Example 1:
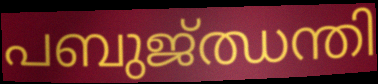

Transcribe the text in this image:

പബുജ്ഝന്തി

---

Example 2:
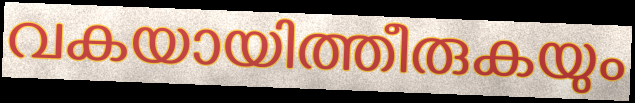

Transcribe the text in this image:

വകയായിത്തീരുകയും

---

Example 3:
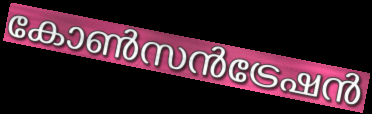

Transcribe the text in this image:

കോൺസൻട്രേഷൻ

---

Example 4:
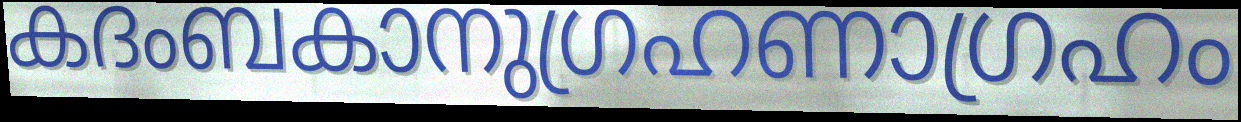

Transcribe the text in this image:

കദംബകാനുഗ്രഹണാഗ്രഹം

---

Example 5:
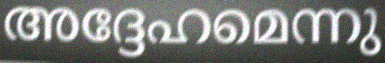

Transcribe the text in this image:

അദ്ദേഹമെന്നു